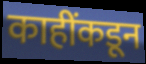
काहींकडून